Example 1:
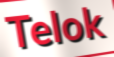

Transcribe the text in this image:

Telok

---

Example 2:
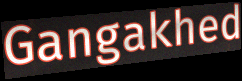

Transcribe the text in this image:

Gangakhed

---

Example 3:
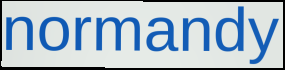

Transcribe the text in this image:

normandy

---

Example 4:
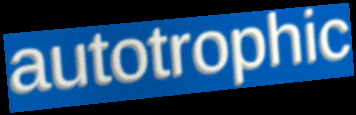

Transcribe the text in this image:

autotrophic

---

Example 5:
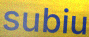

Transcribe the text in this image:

subiu